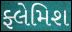
ફ્લેમિશ